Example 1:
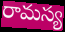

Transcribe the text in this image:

రామస్య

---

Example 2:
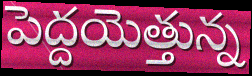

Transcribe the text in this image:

పెద్దయెత్తున్న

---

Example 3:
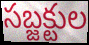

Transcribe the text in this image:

సబ్జక్టుల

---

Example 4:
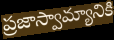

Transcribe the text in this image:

ప్రజాస్వామ్యానికి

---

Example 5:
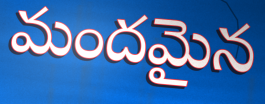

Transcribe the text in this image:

మందమైన